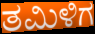
ತಮಿಳಿಗ